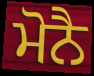
ਮੋਨੈ